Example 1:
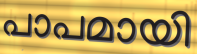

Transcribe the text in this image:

പാപമായി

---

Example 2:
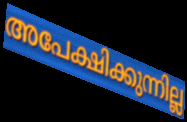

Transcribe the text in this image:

അപേക്ഷിക്കുന്നില്ല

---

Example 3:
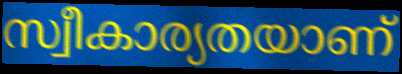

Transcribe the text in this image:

സ്വീകാര്യതയാണ്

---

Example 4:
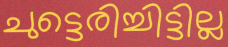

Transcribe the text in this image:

ചുട്ടെരിച്ചിട്ടില്ല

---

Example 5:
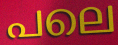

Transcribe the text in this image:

പലെ